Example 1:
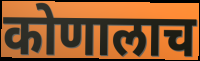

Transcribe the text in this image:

कोणालाच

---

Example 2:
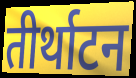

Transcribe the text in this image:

तीर्थाटन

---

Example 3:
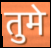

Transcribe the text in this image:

तुमे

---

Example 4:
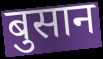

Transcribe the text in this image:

बुसान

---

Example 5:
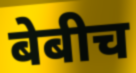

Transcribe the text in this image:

बेबीच